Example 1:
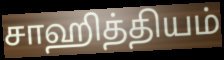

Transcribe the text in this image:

சாஹித்தியம்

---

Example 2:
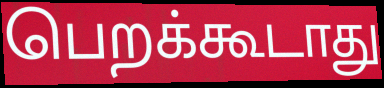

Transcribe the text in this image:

பெறக்கூடாது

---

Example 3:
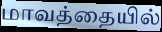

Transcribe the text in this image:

மாவத்தையில்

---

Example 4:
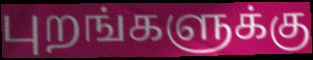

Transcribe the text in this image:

புறங்களுக்கு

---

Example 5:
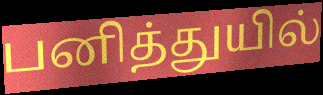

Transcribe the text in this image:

பனித்துயில்